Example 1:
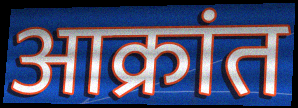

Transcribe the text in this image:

आक्रांत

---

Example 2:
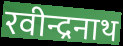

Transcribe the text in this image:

रवीन्द्रनाथ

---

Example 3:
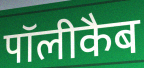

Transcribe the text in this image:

पॉलीकैब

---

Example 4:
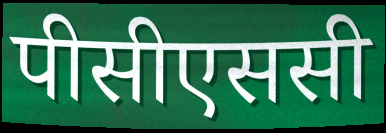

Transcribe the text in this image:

पीसीएससी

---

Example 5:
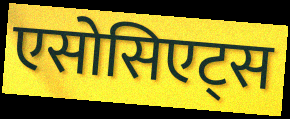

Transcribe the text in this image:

एसोसिएट्स